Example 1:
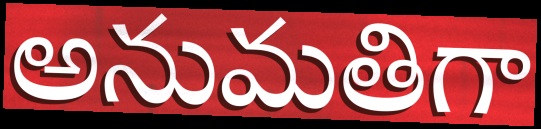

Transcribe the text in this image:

అనుమతిగా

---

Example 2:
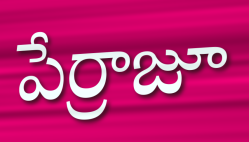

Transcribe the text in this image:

పేర్రాజూ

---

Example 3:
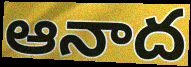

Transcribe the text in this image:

ఆనాద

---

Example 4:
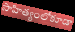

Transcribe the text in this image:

సాహిత్యంలోకూడా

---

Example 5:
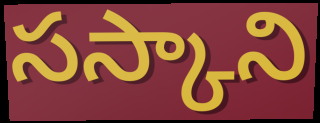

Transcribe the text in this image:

సస్కాని